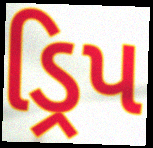
ડ્રિપ